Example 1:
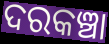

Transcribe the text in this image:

ଦରକଞ୍ଚା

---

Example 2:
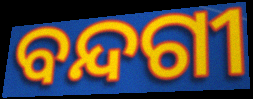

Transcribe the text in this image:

ବନ୍ଦଗୀ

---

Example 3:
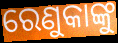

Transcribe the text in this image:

ରେଣୁକାଙ୍କୁ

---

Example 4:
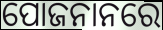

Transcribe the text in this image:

ପୋଜନାନରେ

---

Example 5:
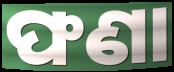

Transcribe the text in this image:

ଫଣା